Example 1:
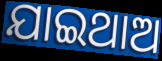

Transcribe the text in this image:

ଯାଇଥାଅ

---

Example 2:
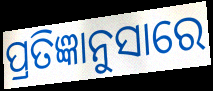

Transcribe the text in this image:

ପ୍ରତିଜ୍ଞାନୁସାରେ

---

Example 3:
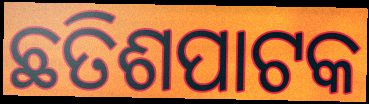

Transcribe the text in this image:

ଛତିଶପାଟକ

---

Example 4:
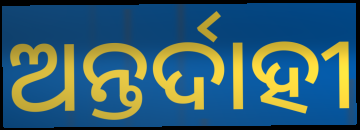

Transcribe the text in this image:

ଅନ୍ତର୍ଦାହୀ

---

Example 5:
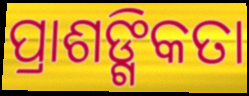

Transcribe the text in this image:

ପ୍ରାଶଙ୍ଗିକତା